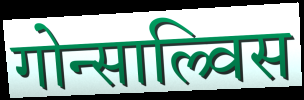
गोन्साल्विस